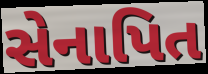
સેનાપિત